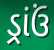
ડ્રાંઉં